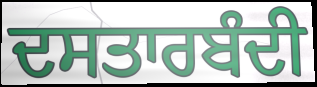
ਦਸਤਾਰਬੰਦੀ